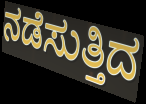
ನಡೆಸುತ್ತಿದ